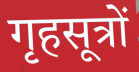
गृहसूत्रों